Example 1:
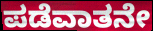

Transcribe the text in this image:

ಪಡೆವಾತನೇ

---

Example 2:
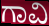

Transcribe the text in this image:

ಗಾವಿ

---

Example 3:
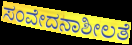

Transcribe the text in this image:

ಸಂವೇದನಾಶೀಲತೆ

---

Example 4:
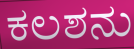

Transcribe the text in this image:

ಕಲಶನು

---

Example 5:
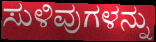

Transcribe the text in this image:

ಸುಳಿವುಗಳನ್ನು